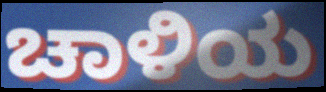
ಚಾಳಿಯ